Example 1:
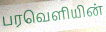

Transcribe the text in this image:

பரவெளியின்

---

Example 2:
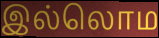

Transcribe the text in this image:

இல்லொம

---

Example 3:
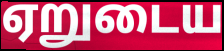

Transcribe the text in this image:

ஏறுடைய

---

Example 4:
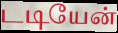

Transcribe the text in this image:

டடியேன்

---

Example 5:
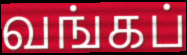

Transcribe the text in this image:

வங்கப்